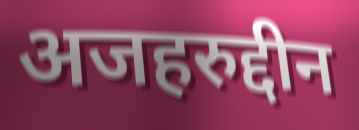
अजहरुद्दीन